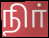
நிர்